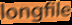
longfile